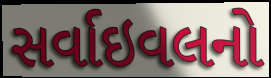
સર્વાઇવલનો